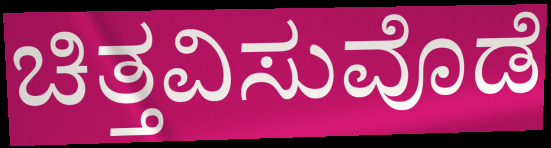
ಚಿತ್ತವಿಸುವೊಡೆ